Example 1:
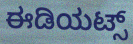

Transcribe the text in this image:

ಈಡಿಯಟ್ಸ್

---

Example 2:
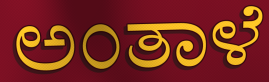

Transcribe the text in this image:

ಅಂತಾಳೆ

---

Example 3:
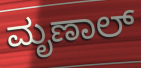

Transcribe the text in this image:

ಮೃಣಾಲ್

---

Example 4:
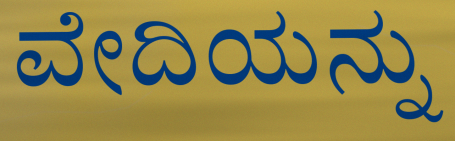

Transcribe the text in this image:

ವೇದಿಯನ್ನು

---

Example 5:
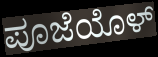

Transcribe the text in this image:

ಪೂಜೆಯೊಳ್